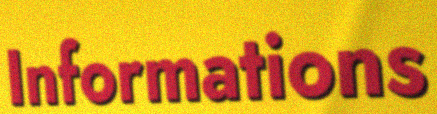
Informations